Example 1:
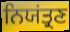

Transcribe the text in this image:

ਨਿਯਂਤ੍ਰਣ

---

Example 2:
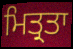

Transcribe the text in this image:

ਮਿਤ੍ਰਤਾ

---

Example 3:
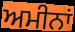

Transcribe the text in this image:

ਅਮੀਨਾਂ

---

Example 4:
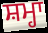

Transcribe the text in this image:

ਸ਼ਮ੍ਹਾ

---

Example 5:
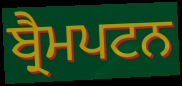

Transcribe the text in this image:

ਬ੍ਰੈਮਪਟਨ